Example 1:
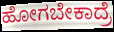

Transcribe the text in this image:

ಹೋಗಬೇಕಾದ್ರೆ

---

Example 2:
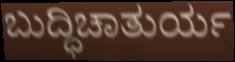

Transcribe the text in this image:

ಬುದ್ಧಿಚಾತುರ್ಯ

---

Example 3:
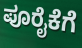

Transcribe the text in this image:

ಪೂರೈಕೆಗೆ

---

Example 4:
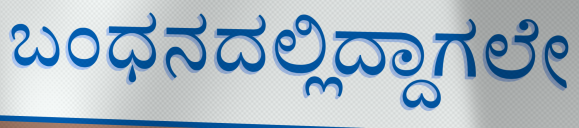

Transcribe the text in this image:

ಬಂಧನದಲ್ಲಿದ್ದಾಗಲೇ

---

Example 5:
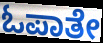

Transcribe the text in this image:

ಓಪಾತೇ